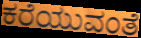
ಕರೆಯುವಂತೆ